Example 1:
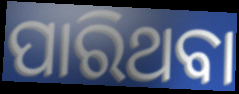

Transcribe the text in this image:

ପାରିଥବା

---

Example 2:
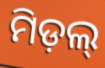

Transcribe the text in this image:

ମିଡ଼ଲ୍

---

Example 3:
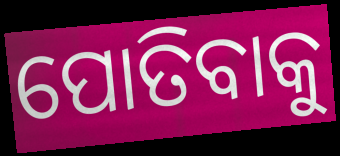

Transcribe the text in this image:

ପୋତିବାକୁ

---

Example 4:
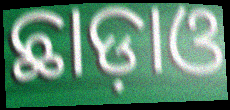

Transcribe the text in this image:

ଛାଡ଼ାଓ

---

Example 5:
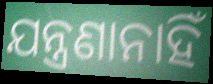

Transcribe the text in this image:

ଯନ୍ତ୍ରଣାନାହିଁ